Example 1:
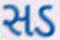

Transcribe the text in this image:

સડ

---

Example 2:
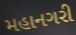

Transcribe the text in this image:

મહાનગરી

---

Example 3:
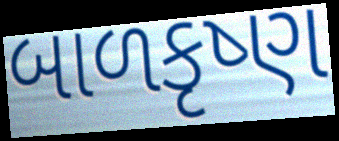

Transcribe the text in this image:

બાળકૃષ્ણ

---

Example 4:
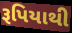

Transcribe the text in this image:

રૂપિયાથી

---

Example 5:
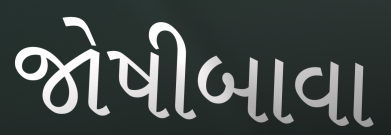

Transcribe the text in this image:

જોષીબાવા